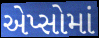
એપ્સોમાં